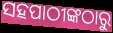
ସହପାଠୀଙ୍କଠାରୁ